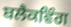
ਬਲੈਕਵਿੰਗ